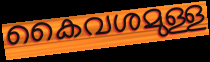
കൈവശമുള്ള